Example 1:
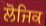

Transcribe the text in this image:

ਲੋਜਿਕ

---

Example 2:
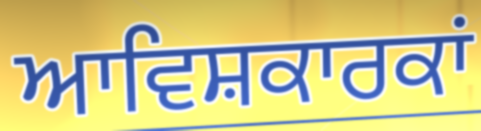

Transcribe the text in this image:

ਆਵਿਸ਼ਕਾਰਕਾਂ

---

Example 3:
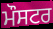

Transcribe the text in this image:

ਮੌਸਟਰ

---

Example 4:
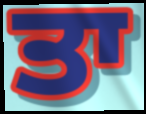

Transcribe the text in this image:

ਤਾ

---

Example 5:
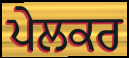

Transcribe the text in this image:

ਪੇਲਕਰ